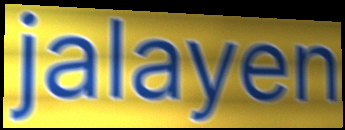
jalayen